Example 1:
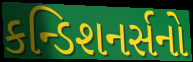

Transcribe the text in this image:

કન્ડિશનર્સનો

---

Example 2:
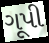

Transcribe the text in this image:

ગૂપી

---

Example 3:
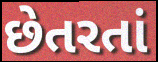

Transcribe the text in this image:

છેતરતાં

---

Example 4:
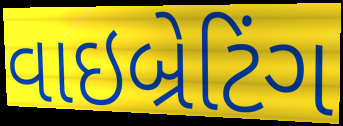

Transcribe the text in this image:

વાઇબ્રેટિંગ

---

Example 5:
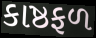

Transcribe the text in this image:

કાષ્ઠફળ